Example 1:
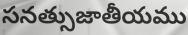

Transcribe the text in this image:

సనత్సుజాతీయము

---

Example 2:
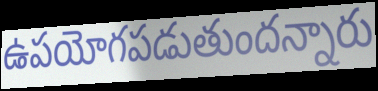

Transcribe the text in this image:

ఉపయోగపడుతుందన్నారు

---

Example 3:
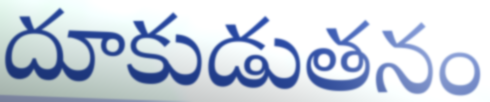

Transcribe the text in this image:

దూకుడుతనం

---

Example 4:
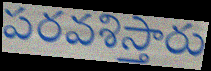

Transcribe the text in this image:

పరవశిస్తారు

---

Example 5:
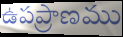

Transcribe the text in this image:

ఉపప్రాణము